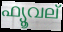
ഫ്യൂവല്